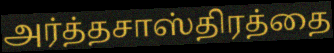
அர்த்தசாஸ்திரத்தை